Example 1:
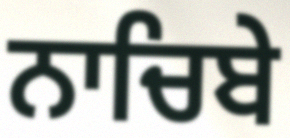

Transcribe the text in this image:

ਨਾਚਿਬੇ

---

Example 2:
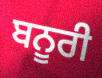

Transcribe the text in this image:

ਬਨੂਰੀ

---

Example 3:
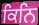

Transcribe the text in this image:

ਕਿਨਿ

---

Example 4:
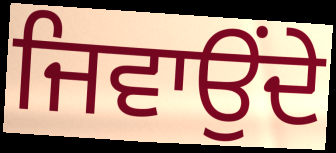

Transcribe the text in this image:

ਜਿਵਾਉਂਦੇ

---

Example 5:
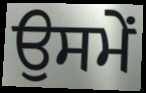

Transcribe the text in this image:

ਉਸਮੇਂ